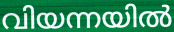
വിയന്നയിൽ